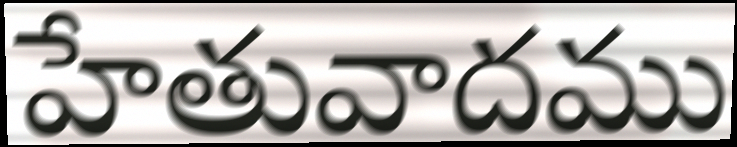
హేతువాదము